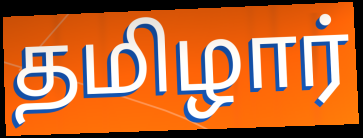
தமிழார்